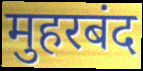
मुहरबंद